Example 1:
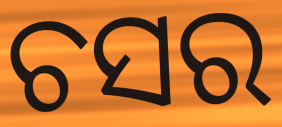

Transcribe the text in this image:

ଚସର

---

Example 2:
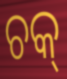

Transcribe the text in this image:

ଚକ୍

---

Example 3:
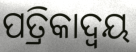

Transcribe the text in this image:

ପତ୍ରିକାଦ୍ୱୟ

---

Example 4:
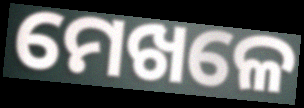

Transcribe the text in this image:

ମେଖଳେ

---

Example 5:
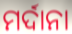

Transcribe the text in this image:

ମର୍ଦାନା